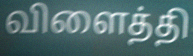
விளைத்தி